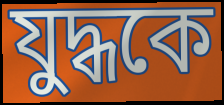
যুদ্ধকে